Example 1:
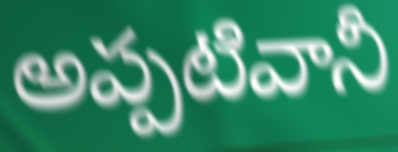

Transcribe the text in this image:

అప్పటివానీ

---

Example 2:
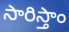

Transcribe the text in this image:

సారిస్తాం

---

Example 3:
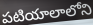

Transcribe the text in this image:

పటియాలాలోని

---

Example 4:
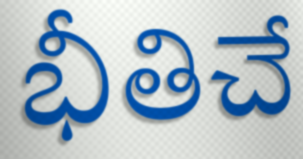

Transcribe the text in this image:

భీతిచే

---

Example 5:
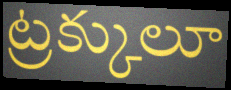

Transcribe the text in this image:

ట్రక్కులూ